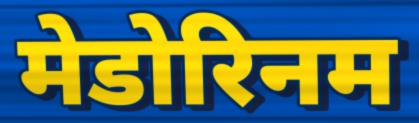
मेडोरिनम